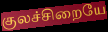
குலச்சிறையே